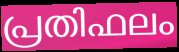
പ്രതിഫലം